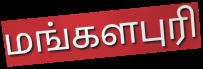
மங்களபுரி